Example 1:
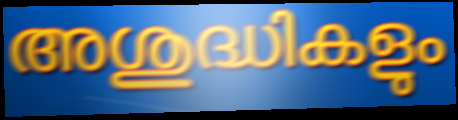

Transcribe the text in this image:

അശുദ്ധികളും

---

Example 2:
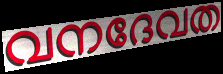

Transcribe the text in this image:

വനദേവത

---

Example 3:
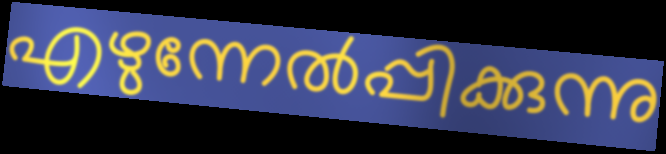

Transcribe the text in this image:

എഴുന്നേൽപ്പിക്കുന്നു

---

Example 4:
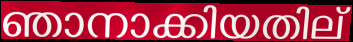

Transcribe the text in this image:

ഞാനാക്കിയതില്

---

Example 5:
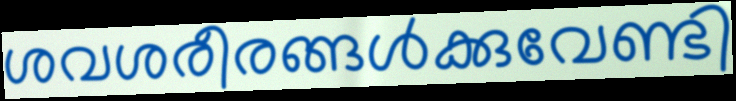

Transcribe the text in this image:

ശവശരീരങ്ങൾക്കുവേണ്ടി